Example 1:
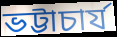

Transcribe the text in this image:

ভট্টাচার্য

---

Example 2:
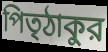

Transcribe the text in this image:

পিতৃঠাকুর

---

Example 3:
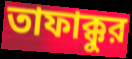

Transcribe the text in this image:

তাফাক্কুর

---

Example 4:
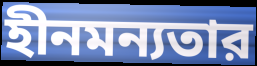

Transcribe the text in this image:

হীনমন্যতার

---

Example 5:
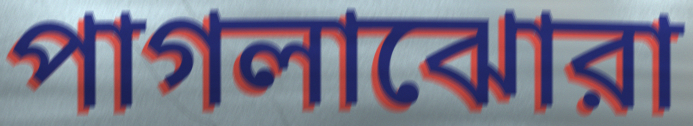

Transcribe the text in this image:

পাগলাঝোরা